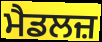
ਮੈਡਲਜ਼